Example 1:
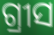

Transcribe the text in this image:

ଗ୍ରୀସ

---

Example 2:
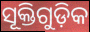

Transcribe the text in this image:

ସୂକ୍ତିଗୁଡ଼ିକ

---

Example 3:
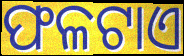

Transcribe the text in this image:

ଫଳଟାଏ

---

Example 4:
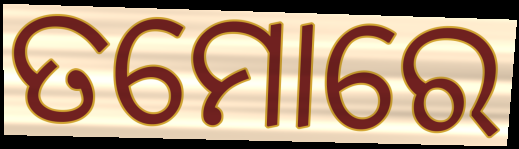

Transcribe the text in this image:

ତମୋରେ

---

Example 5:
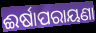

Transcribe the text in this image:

ଈର୍ଷାପରାୟଣା